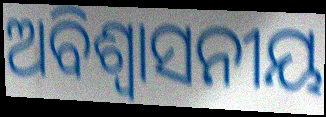
ଅବିଶ୍ୱାସନୀୟ